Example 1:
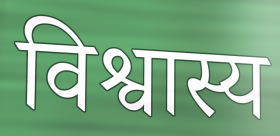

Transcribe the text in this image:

विश्वास्य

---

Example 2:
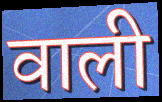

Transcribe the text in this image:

वाली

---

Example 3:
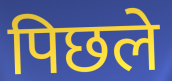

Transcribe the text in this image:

पिछले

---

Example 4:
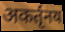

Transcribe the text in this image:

अकर्तृनय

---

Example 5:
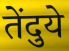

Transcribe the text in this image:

तेंदुये